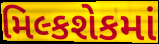
મિલ્કશેકમાં